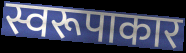
स्वरूपाकार